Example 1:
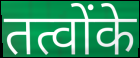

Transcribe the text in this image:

तत्वोंके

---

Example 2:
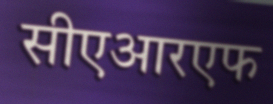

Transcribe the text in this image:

सीएआरएफ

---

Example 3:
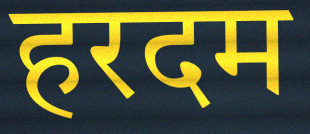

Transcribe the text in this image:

हरदम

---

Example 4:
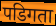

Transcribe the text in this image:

पडिगता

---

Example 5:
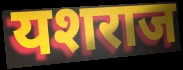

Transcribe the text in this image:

यशराज